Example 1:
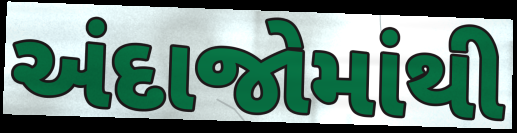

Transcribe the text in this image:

અંદાજોમાંથી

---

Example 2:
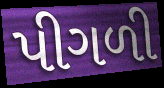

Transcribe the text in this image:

પીગળી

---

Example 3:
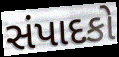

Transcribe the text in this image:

સંપાદકો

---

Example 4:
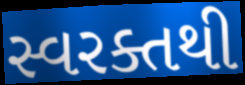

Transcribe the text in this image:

સ્વરક્તથી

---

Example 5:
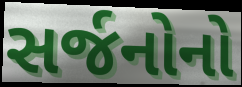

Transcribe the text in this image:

સર્જનોનો